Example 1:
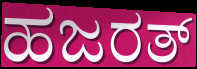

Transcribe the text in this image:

ಹಜರತ್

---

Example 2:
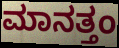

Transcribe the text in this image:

ಮಾನತ್ತಂ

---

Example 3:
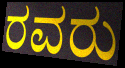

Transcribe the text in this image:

ರವರು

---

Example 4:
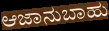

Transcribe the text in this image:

ಆಜಾನುಬಾಹು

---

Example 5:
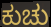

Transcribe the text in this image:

ಕುಚು